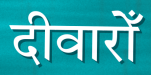
दीवारोँ